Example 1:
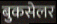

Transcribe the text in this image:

बुकसेलर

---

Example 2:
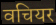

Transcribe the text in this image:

वचियर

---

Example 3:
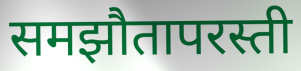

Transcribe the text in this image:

समझौतापरस्ती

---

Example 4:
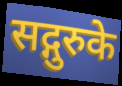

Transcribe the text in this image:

सद्गुरुके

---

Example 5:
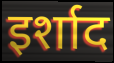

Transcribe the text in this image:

इर्शाद